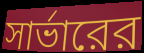
সার্ভারের